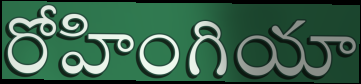
రోహింగియా